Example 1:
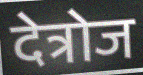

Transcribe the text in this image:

देत्रोज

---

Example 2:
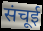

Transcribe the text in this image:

संचूई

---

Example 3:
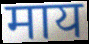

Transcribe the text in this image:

माय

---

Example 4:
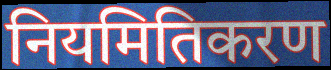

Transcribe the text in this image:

नियमितिकरण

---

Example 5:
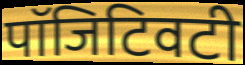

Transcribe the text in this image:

पॉजिटिवटी